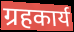
ग्रहकार्य